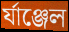
র্যাঞ্জেল